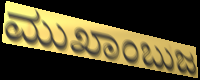
ಮುಖಾಂಬುಜ